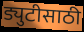
ड्युटीसाठी